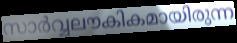
സാർവ്വലൗകികമായിരുന്ന